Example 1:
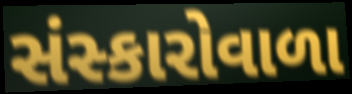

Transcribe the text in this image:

સંસ્કારોવાળા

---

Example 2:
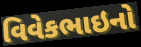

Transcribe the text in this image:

વિવેકભાઇનો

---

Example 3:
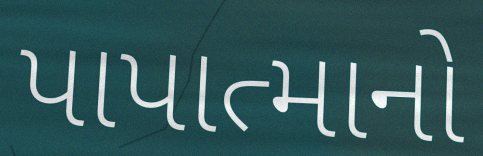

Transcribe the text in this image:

પાપાત્માનો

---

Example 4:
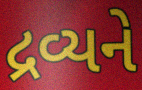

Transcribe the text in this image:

દ્રવ્યને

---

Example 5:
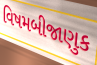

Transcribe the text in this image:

વિષમબીજાણુક